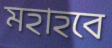
মহাহবে